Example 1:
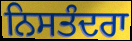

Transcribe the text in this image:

ਨਿਸਤੰਦਰਾ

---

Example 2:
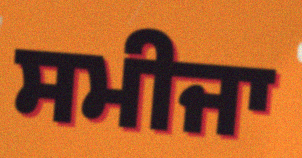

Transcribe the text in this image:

ਸਮੀਜਾ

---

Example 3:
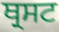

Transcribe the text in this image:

ਥ੍ਰਸਟ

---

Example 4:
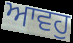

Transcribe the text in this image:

ਆਵਹੁ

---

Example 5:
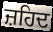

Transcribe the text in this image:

ਜ਼ਹਿਦ